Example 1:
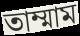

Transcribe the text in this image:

তাম্মাম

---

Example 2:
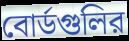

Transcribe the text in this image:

বোর্ডগুলির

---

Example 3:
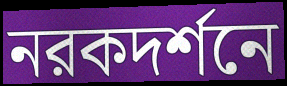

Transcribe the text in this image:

নরকদর্শনে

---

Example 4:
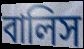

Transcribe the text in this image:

বালিস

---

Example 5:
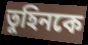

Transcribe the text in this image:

তুহিনকে